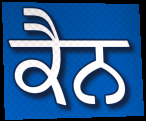
ਕੈਨ